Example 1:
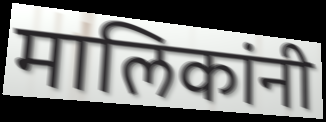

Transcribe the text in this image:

मालिकांनी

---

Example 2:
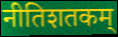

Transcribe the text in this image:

नीतिशतकम्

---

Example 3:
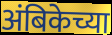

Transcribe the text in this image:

अंबिकेच्या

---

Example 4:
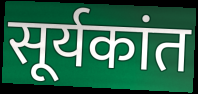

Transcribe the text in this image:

सूर्यकांत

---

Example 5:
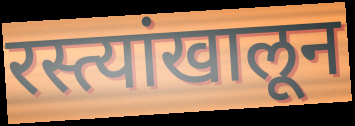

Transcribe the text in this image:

रस्त्यांखालून